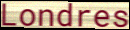
Londres